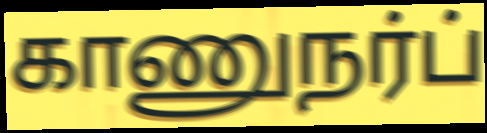
காணுநர்ப்